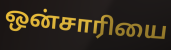
ஒன்சாரியை